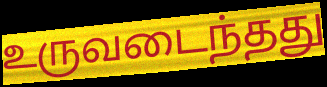
உருவடைந்தது